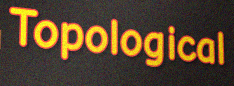
Topological